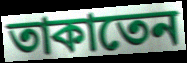
তাকাতেন